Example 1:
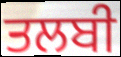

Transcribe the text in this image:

ਤਲਬੀ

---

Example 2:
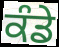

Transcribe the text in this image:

ਕੰਡੇ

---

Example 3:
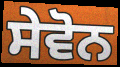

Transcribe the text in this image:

ਸੇਵੋਨ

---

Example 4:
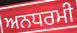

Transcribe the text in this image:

ਅਨਧਰਮੀ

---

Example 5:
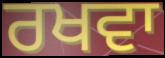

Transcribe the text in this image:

ਰਖਵਾ